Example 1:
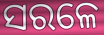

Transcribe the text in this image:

ସରଳେ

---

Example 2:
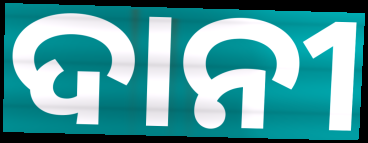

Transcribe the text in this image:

ଦାନୀ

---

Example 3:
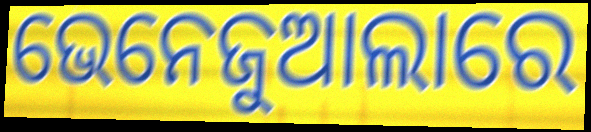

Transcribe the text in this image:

ଭେନେଜୁଆଲାରେ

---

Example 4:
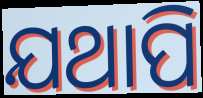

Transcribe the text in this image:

ଯଥାପି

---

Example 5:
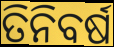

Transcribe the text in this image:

ତିନିବର୍ଷ